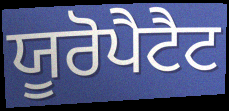
ਯੂਰੋਪੈਟੈਟ